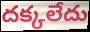
దక్కలేదు